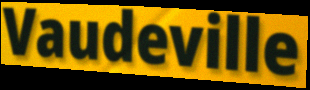
Vaudeville